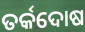
ତର୍କଦୋଷ